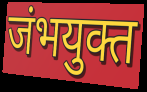
जंभयुक्त